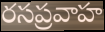
రసప్రవాహ